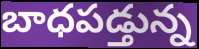
బాధపడ్తున్న